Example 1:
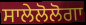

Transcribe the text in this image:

ਸਾਲੇਲੋਲੋਗਾ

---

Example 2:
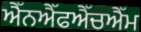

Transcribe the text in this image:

ਐੱਨਐੱਫਐੱਚਐੱਮ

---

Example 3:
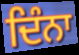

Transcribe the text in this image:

ਦਿੰਨਾ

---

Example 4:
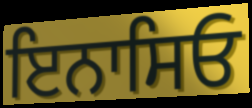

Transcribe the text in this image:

ਇਨਾਸਿਓ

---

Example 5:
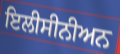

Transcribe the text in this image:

ਇਲੀਸੀਨੀਅਨ